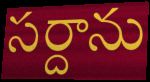
సర్దాను